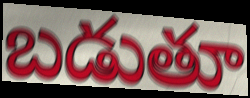
బడుతూ